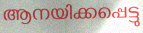
ആനയിക്കപ്പെട്ടു